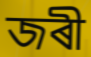
জৰী